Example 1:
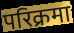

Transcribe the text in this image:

परिक्रमा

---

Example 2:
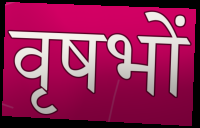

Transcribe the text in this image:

वृषभों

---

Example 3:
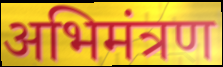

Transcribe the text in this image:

अभिमंत्रण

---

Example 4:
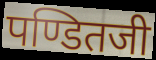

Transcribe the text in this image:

पण्डितजी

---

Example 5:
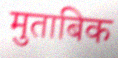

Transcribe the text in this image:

मुताबिक